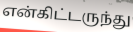
என்கிட்டருந்து